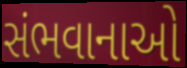
સંભવાનાઓ